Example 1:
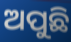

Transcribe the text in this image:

ଅପୁଛି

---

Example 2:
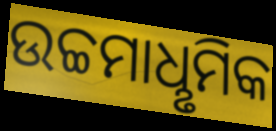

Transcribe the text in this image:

ଉଚ୍ଚମାଧୢମିକ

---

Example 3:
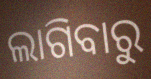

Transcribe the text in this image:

ଲାଗିବାରୁ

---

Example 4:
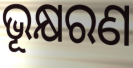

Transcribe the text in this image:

ଭୂକ୍ଷରଣ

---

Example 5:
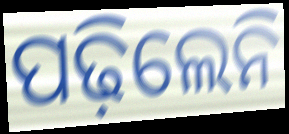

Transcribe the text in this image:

ପଢ଼ିଲେନି